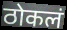
ठोकलं